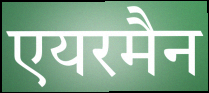
एयरमैन